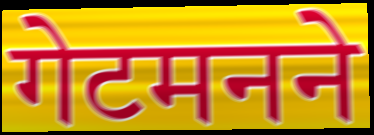
गेटमनने